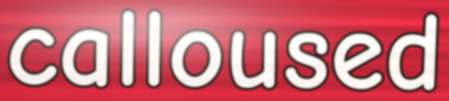
calloused